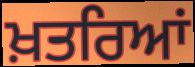
ਖ਼ਤਰਿਆਂ